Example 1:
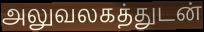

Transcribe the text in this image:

அலுவலகத்துடன்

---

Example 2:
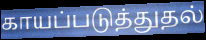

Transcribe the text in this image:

காயப்படுத்துதல்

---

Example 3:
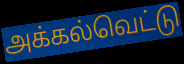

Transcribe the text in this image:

அக்கல்வெட்டு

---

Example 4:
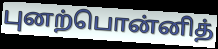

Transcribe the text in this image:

புனற்பொன்னித்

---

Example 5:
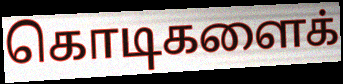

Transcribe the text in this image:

கொடிகளைக்